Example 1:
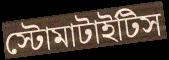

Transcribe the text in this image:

স্টোমাটাইটিস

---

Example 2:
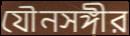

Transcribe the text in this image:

যৌনসঙ্গীর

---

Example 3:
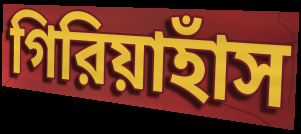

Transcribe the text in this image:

গিরিয়াহাঁস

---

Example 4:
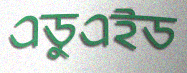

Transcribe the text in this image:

এডুএইড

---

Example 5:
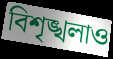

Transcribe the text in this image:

বিশৃঙ্খলাও